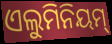
ଏଲୁମିନିୟମ୍